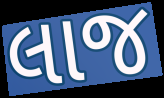
લાજ